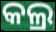
କଲ୍ର